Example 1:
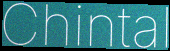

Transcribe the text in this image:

Chintal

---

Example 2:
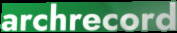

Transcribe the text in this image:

archrecord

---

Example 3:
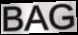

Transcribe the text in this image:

BAG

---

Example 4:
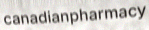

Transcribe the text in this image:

canadianpharmacy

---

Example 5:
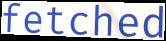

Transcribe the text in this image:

fetched